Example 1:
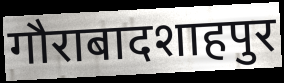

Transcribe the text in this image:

गौराबादशाहपुर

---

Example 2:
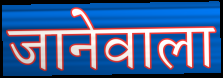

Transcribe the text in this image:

जानेवाला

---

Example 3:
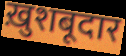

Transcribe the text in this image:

ख़ुशबूदार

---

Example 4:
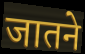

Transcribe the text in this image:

जातने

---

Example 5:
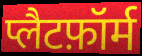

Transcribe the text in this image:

प्लैटफ़ॉर्म